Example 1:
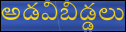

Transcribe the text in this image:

అడవిబిడ్డలు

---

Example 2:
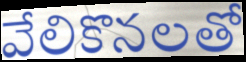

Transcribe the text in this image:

వేలికొనలతో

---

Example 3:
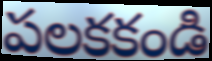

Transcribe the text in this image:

పలకకండి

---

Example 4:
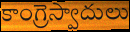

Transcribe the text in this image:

కాంగ్రెస్వాదులు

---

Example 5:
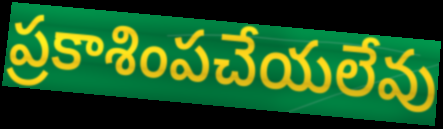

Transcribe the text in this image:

ప్రకాశింపచేయలేవు